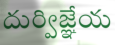
దుర్విజ్ఞేయ